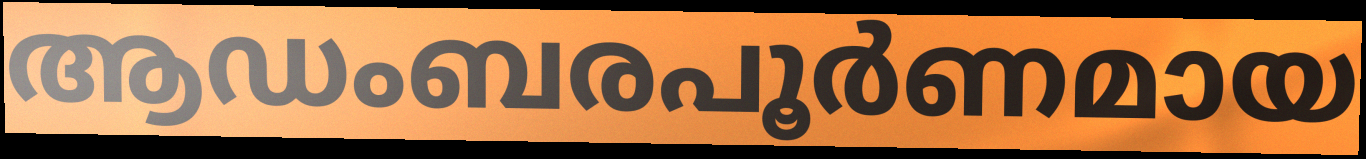
ആഡംബരപൂർണമായ